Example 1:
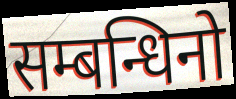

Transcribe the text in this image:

सम्बन्धिनो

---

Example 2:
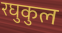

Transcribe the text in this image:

रघुकुल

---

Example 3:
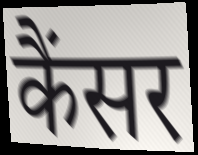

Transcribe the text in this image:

कैंसर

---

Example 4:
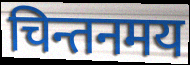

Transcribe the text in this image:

चिन्तनमय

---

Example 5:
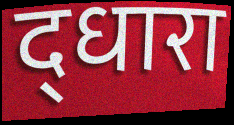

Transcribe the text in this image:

द्धारा